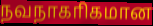
நவநாகரிகமான